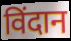
विंदान